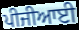
ਪੀਜੀਆਈ